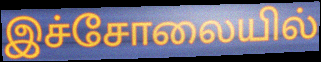
இச்சோலையில்